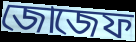
জোজেফ